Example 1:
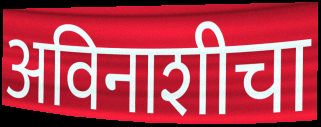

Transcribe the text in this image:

अविनाशीचा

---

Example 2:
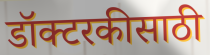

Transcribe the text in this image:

डॉक्टरकीसाठी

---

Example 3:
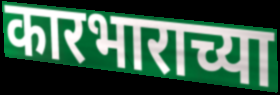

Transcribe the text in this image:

कारभाराच्या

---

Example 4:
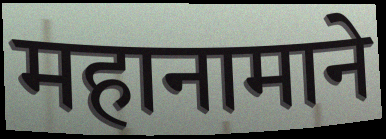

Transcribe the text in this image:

महानामाने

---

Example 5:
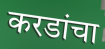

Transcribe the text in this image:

करडांचा